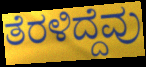
ತೆರಳಿದ್ದೆವು